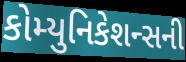
કોમ્યુનિકેશન્સની